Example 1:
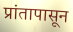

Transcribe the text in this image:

प्रांतापासून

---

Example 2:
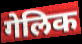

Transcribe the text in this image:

गेलिक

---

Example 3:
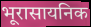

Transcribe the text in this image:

भूरासायनिक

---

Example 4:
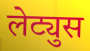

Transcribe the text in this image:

लेट्युस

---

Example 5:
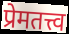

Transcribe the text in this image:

प्रेमतत्त्व